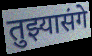
तुझ्यासंगे